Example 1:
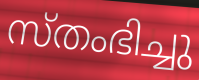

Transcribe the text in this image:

സ്തംഭിച്ചു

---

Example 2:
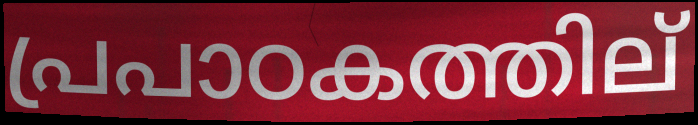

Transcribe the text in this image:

പ്രപാഠകത്തില്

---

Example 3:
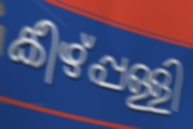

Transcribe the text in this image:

കീഴ്പ്പള്ളി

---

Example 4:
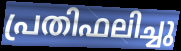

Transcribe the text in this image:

പ്രതിഫലിച്ചു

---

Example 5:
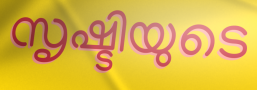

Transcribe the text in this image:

സൃഷ്ടിയുടെ